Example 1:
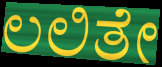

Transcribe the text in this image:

ಲಲಿತೇ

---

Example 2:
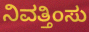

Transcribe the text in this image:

ನಿವತ್ತಿಂಸು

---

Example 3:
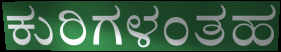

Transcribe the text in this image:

ಕುರಿಗಳಂತಹ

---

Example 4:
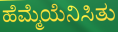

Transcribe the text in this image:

ಹೆಮ್ಮೆಯೆನಿಸಿತು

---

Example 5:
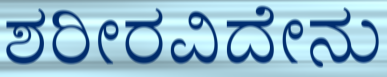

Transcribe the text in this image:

ಶರೀರವಿದೇನು